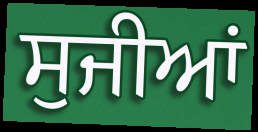
ਸੁਜੀਆਂ